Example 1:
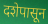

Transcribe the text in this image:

दशेपासून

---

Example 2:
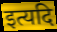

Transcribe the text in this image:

इत्यदि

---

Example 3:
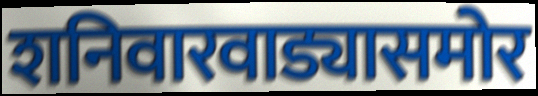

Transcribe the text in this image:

शनिवारवाड्यासमोर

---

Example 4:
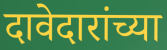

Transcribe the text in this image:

दावेदारांच्या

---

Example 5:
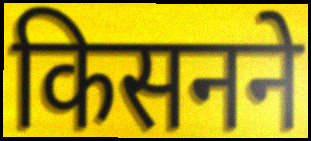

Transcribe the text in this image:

किसनने